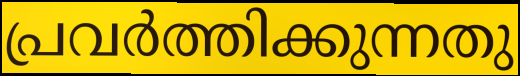
പ്രവർത്തിക്കുന്നതു